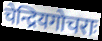
चेन्द्रियगोचराः